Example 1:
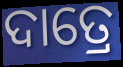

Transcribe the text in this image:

ଦାତ୍ରେ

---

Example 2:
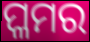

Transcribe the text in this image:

ପ୍ଳମର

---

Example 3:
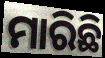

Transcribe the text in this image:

ମାରିଛି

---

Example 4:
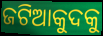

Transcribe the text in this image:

ଜଟିଆକୁଦକୁ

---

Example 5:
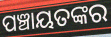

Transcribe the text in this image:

ପଞ୍ଚାୟତଙ୍କର